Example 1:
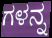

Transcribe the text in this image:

ಗಳನ್ನ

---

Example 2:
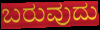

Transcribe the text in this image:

ಬರುವುದು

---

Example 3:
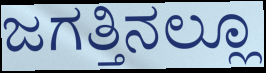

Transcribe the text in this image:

ಜಗತ್ತಿನಲ್ಲೂ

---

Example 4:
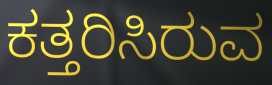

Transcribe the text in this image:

ಕತ್ತರಿಸಿರುವ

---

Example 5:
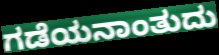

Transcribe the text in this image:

ಗಡೆಯನಾಂತುದು